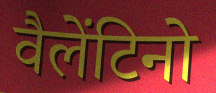
वैलेंटिनो